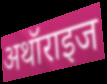
अथॉराइज